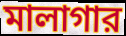
মালাগার